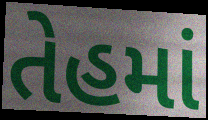
તેહમાં